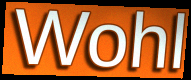
Wohl